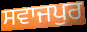
ਸਵਾਜਪੁਰ